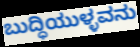
ಬುದ್ಧಿಯುಳ್ಳವನು